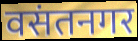
वसंतनगर